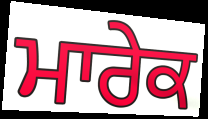
ਮਾਰੇਕ